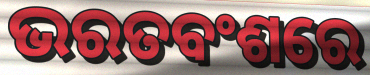
ଭରତବଂଶରେ